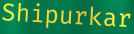
Shipurkar